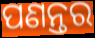
ପଣନ୍ତର